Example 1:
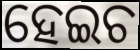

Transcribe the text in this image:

ହେଇଚ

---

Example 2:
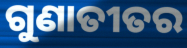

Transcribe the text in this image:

ଗୁଣାତୀତର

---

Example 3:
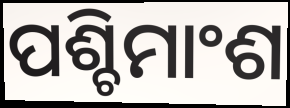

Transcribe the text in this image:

ପଶ୍ଚିମାଂଶ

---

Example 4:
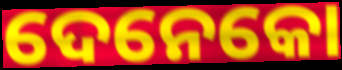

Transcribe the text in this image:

ଦେନେକୋ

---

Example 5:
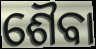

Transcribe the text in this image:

ଶୈବା